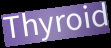
Thyroid